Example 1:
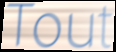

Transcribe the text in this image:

Tout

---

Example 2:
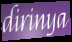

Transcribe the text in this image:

dirinya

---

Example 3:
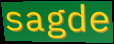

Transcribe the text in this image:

sagde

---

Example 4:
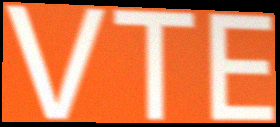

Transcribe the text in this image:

VTE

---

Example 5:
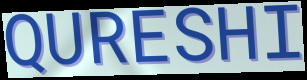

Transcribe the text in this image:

QURESHI